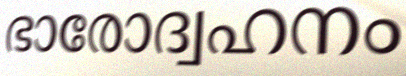
ഭാരോദ്വഹനം